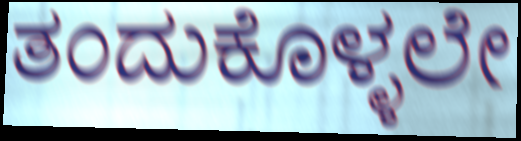
ತಂದುಕೊಳ್ಳಲೇ